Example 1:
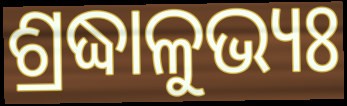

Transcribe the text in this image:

ଶ୍ରଦ୍ଧାଳୁଭ୍ୟଃ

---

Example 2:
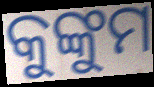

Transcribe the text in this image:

କୁଙ୍କୁମ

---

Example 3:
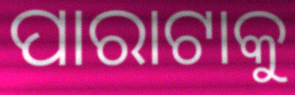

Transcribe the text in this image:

ପାରାଟାକୁ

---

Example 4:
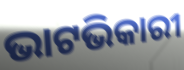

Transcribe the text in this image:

ଭାଟଭିକାରୀ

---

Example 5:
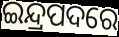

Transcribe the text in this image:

ଇନ୍ଦ୍ରପଦରେ